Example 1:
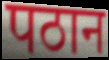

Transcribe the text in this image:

पठान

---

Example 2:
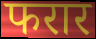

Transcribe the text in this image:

फरार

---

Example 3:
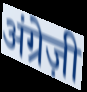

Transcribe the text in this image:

अंग्रेज़ी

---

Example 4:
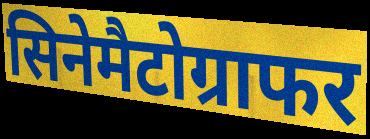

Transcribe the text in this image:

सिनेमैटोग्राफर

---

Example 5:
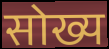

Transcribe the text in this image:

सोख्य